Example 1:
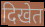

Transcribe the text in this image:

दिखेत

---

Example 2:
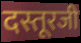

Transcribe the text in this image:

दस्तूरजी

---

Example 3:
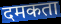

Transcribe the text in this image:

दमकता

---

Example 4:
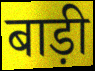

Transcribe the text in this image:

बाड़ी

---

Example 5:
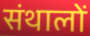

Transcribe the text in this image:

संथालों